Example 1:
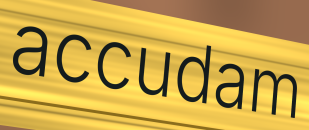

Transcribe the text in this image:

accudam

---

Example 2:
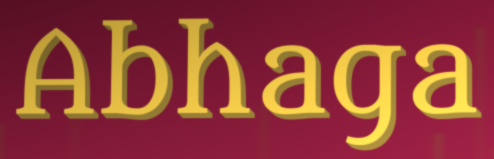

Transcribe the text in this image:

Abhaga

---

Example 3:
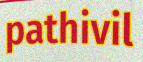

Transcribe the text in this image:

pathivil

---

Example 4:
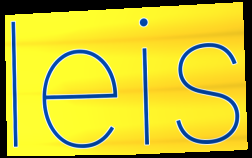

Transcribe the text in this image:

leis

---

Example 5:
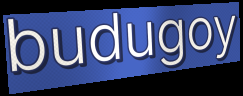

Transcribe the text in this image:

budugoy